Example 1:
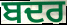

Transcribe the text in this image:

ਬਦਰ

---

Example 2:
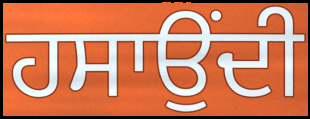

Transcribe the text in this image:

ਹਸਾਉਂਦੀ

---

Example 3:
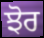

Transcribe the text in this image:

ਝੋਰ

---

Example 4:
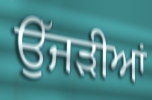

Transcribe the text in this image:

ਉੱਜੜੀਆਂ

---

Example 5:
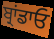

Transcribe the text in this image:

ਬ੍ਰਾਂਡਾਓ